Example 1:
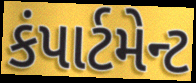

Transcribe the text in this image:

કંપાર્ટમેન્ટ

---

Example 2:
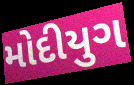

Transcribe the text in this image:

મોદીયુગ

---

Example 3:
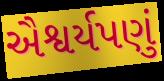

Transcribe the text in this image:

ઐશ્વર્યપણું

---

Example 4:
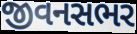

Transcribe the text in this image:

જીવનસભર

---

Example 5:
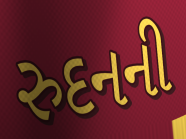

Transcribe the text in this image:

રુદનની